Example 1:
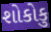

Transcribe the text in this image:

શોકોકુ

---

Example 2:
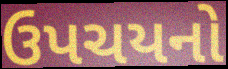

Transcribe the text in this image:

ઉપચયનો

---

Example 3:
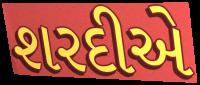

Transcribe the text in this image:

શરદીએ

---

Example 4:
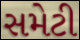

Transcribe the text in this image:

સમેટી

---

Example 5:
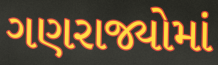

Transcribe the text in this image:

ગણરાજ્યોમાં